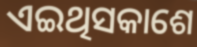
ଏଇଥିସକାଶେ